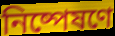
নিষ্পেষণে